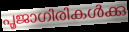
പൂജാഗിരികൾക്കു